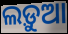
ଲଡ଼ୁଆ